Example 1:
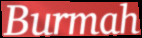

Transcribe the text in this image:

Burmah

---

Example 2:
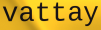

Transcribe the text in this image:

vattay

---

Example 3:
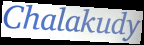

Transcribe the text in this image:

Chalakudy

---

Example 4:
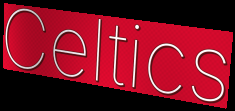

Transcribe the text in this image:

Celtics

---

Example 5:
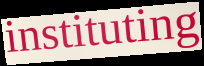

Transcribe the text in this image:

instituting